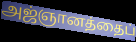
அஜ்ஞானத்தைப்